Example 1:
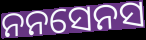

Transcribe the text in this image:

ନନସେନସ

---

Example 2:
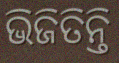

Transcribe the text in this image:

ଭିଜିତିନ୍ତି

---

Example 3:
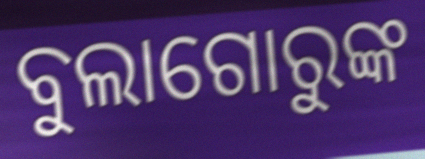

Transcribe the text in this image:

ବୁଲାଗୋରୁଙ୍କ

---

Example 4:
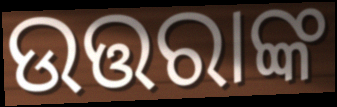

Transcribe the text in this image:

ଉତ୍ତରାଙ୍କ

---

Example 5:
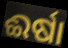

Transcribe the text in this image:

ଈର୍ଷା